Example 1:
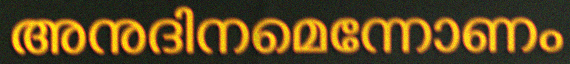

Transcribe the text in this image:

അനുദിനമെന്നോണം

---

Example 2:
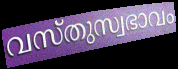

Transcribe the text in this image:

വസ്തുസ്വഭാവം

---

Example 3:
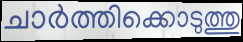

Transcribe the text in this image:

ചാർത്തിക്കൊടുത്തു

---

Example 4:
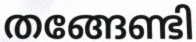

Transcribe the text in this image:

തങ്ങേണ്ടി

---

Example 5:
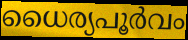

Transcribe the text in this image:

ധൈര്യപൂർവം